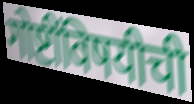
गोष्टींविषयीची